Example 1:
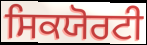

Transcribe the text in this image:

ਸਿਕਯੋਰਟੀ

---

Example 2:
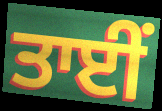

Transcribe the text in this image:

ਤਾਈਂ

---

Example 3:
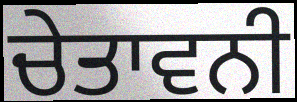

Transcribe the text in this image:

ਚੇਤਾਵਨੀ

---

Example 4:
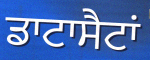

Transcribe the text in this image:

ਡਾਟਾਸੈਟਾਂ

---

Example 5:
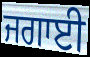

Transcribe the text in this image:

ਜਗਾਈ